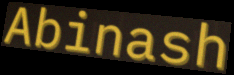
Abinash